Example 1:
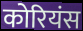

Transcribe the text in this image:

कोरियंस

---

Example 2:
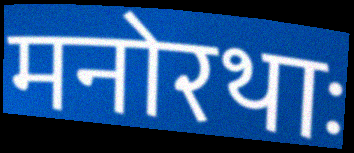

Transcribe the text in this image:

मनोरथाः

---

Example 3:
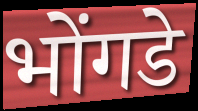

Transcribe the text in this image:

भोंगडे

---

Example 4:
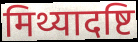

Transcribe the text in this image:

मिथ्यादष्टि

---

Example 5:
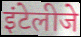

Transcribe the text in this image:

इंटेलीजे